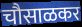
चौसाळकर